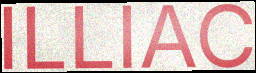
ILLIAC